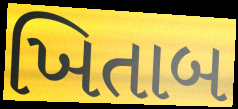
ખિતાબ